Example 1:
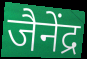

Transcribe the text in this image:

जैनेंद्र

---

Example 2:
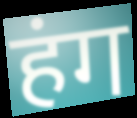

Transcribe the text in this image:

हंग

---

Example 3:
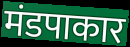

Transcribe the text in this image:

मंडपाकार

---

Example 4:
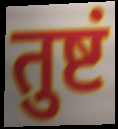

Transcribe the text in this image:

तुष्टं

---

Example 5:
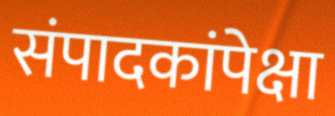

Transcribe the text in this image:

संपादकांपेक्षा